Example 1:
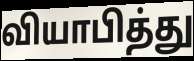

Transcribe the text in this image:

வியாபித்து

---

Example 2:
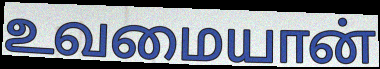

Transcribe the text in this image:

உவமையான்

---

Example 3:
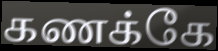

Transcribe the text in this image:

கணக்கே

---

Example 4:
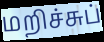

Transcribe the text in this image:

மறிச்சுப்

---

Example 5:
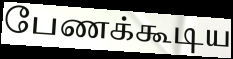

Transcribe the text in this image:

பேணக்கூடிய